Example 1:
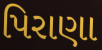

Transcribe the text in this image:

પિરાણા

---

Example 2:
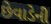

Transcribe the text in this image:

છેવાડેની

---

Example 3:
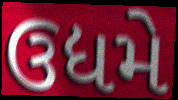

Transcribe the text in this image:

ઉદ્યમે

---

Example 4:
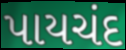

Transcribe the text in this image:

પાયચંદ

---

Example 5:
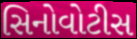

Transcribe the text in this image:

સિનોવોટીસ